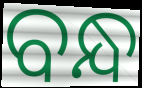
ବନ୍ଧ